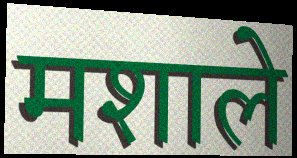
मशाले